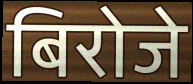
बिरोजे